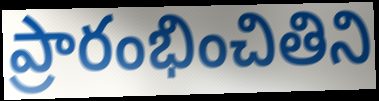
ప్రారంభించితిని